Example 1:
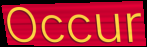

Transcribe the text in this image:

Occur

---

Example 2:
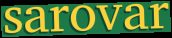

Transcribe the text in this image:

sarovar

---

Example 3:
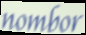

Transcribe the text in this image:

nombor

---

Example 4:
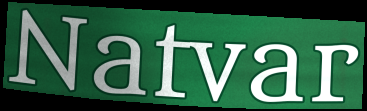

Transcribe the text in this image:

Natvar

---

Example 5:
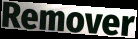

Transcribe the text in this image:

Remover